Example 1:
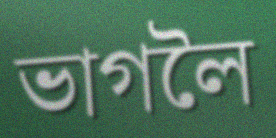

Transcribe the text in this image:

ভাগলৈ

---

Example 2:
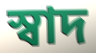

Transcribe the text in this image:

স্বাদ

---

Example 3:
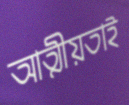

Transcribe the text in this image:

আত্মীয়তাই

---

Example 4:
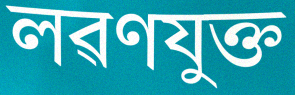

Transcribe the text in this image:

লৱণযুক্ত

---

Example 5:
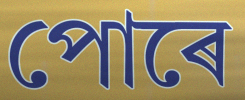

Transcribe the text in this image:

পোৰে